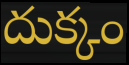
దుక్కం